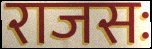
राजसः